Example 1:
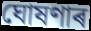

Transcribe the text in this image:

ঘোষণাৰ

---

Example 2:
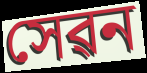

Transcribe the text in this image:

সেৱন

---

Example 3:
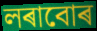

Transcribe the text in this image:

লৰাবোৰ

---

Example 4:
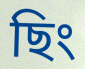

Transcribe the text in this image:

ছিং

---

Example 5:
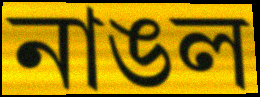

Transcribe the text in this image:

নাঙল